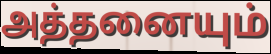
அத்தனையும்